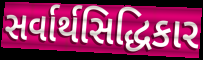
સર્વાર્થસિદ્ધિકાર